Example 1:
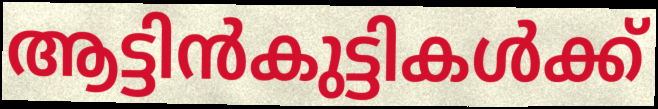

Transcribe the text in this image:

ആട്ടിൻകുട്ടികൾക്ക്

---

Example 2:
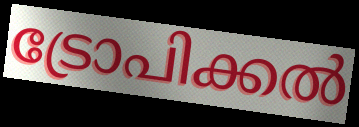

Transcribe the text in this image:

ട്രോപിക്കൽ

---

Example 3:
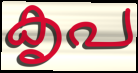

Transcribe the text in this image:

കൃപ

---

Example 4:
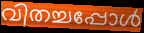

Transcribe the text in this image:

വിതച്ചപ്പോൾ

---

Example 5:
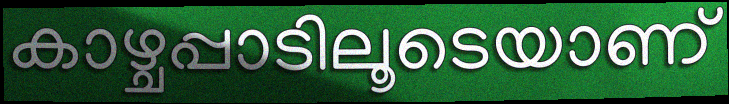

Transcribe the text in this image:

കാഴ്ചപ്പാടിലൂടെയാണ്